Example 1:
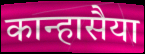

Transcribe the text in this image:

कान्हासैया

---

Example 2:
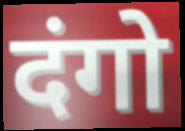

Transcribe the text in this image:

दंगो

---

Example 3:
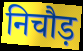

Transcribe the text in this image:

निचौड़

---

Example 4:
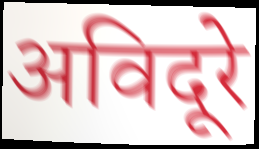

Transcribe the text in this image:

अविदूरे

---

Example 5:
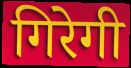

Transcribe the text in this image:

गिरेगी